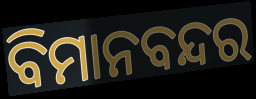
ବିମାନବନ୍ଦର